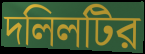
দলিলটির